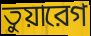
তুয়ারেগ